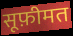
सूफ़ीमत